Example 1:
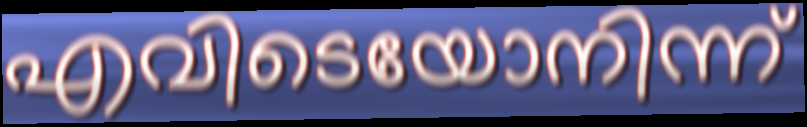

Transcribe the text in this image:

എവിടെയോനിന്ന്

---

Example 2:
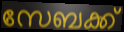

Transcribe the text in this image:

സേബക്ക്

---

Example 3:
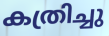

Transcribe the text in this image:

കത്രിച്ചു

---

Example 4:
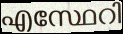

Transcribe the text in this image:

എസ്ഥേറി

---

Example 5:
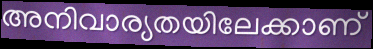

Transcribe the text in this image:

അനിവാര്യതയിലേക്കാണ്